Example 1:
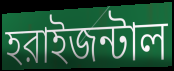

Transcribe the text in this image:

হরাইজন্টাল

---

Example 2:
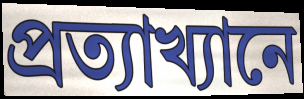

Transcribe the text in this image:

প্রত্যাখ্যানে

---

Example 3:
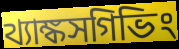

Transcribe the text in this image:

থ্যাঙ্কসগিভিং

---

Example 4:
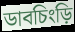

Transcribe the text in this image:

ডাবচিংড়ি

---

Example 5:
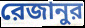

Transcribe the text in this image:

রেজানুর